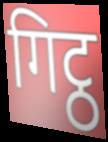
गिट्ठ